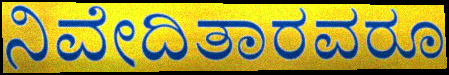
ನಿವೇದಿತಾರವರೂ